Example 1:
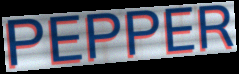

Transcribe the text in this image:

PEPPER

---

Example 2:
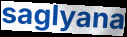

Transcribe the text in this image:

saglyana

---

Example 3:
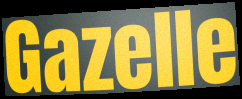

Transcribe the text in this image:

Gazelle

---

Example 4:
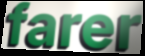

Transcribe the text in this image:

farer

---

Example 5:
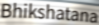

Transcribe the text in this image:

Bhikshatana